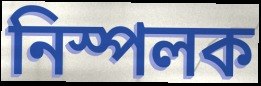
নিস্পলক